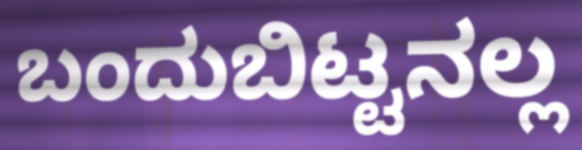
ಬಂದುಬಿಟ್ಟನಲ್ಲ